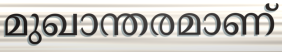
മുഖാന്തരമാണ്